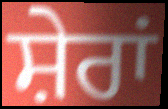
ਸ਼ੇਰਾਂ